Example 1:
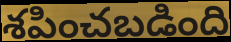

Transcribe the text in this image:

శపించబడింది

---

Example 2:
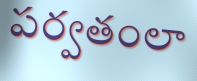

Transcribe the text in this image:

పర్వతంలా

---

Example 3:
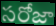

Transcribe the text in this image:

సరోజా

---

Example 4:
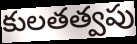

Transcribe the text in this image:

కులతత్వపు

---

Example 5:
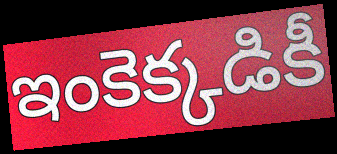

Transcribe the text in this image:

ఇంకెక్కడికీ